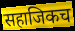
सहाजिकच